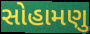
સોહામણુ